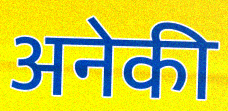
अनेकी